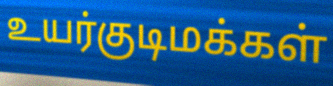
உயர்குடிமக்கள்